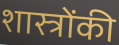
शास्त्रोंकी